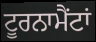
ਟੂਰਨਾਮੈਂਟਾਂ